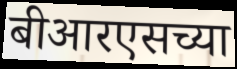
बीआरएसच्या